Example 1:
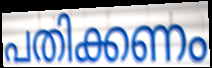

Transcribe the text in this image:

പതിക്കണം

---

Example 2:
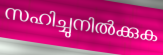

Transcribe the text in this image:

സഹിച്ചുനിൽക്കുക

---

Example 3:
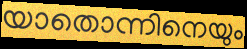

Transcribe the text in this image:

യാതൊന്നിനെയും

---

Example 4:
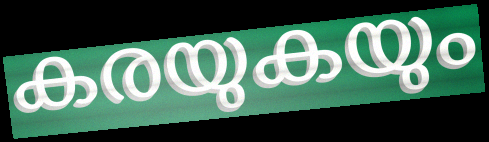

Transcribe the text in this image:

കരയുകയും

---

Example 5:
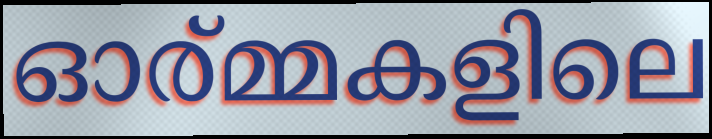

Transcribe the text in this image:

ഓര്മ്മകളിലെ